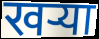
खऱ्या